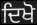
ਦਿਖੋ